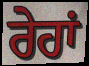
ਰੇਹਾਂ